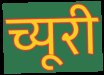
च्यूरी